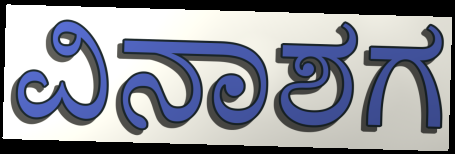
ವಿನಾಶಗ